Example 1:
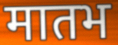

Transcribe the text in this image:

मातभ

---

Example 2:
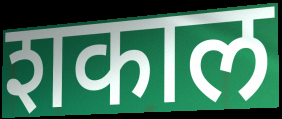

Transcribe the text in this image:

शकाल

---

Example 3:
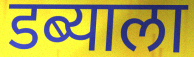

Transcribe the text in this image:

डब्याला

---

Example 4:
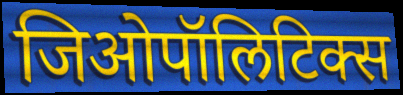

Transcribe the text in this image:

जिओपॉलिटिक्स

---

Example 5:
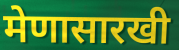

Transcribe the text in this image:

मेणासारखी